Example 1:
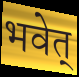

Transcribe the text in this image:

भवेत्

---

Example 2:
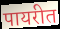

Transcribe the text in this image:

पायरीत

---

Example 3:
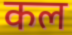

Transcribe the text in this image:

कल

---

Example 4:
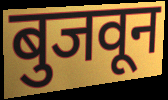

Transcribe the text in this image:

बुजवून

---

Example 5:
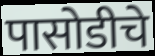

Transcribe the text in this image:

पासोडीचे